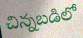
చిన్నబడిలో